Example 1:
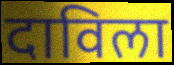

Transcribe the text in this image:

दाविला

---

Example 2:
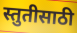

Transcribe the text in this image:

स्तुतीसाठी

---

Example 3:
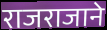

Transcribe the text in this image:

राजराजाने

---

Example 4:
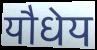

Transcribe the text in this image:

यौधेय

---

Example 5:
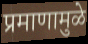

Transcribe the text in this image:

प्रमाणामुळे